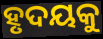
ହୃଦୟକୁ